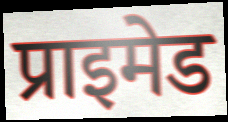
प्राइमेड